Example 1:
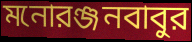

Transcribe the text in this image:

মনোরঞ্জনবাবুর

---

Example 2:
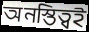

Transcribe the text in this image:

অনস্তিত্বই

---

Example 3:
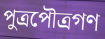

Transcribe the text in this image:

পুত্রপৌত্রগণ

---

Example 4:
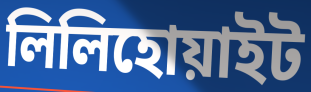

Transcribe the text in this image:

লিলিহোয়াইট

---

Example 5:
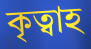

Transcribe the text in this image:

কৃত্বাহ